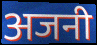
अजनी